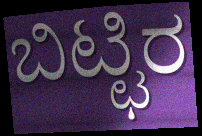
ಬಿಟ್ಟಿರ